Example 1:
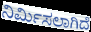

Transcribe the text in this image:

ನಿರ್ಮಿಸಲಾಗಿದೆ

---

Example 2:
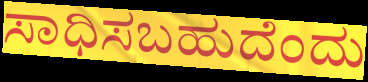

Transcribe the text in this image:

ಸಾಧಿಸಬಹುದೆಂದು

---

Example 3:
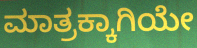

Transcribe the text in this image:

ಮಾತ್ರಕ್ಕಾಗಿಯೇ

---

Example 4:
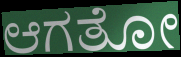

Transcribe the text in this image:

ಆಗತೋ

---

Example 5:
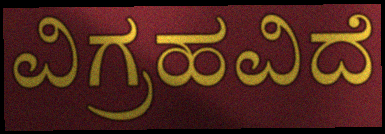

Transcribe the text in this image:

ವಿಗ್ರಹವಿದೆ